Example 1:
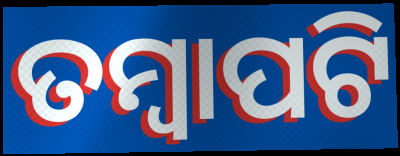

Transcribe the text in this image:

ତମ୍ବାପଟି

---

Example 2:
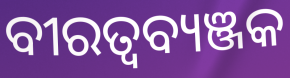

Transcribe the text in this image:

ବୀରତ୍ବବ୍ୟଞ୍ଜକ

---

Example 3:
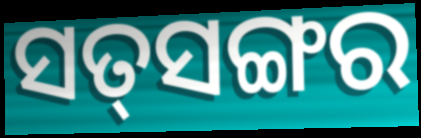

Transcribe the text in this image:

ସତ୍‌ସଙ୍ଗର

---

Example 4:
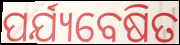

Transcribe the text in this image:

ପର୍ଯ୍ୟବେଷିତ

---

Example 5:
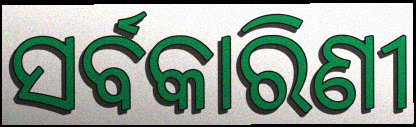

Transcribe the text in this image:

ସର୍ବକାରିଣୀ